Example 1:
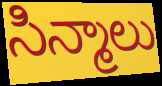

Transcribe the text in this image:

సిన్మాలు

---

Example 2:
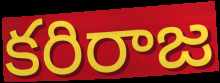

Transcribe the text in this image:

కరిరాజ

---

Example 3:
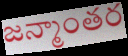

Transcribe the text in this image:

జన్మాంతర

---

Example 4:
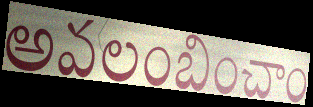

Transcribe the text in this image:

అవలంబించాం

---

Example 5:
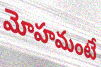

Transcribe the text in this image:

మోహమంటే